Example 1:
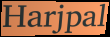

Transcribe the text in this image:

Harjpal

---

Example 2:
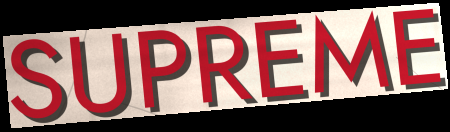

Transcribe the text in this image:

SUPREME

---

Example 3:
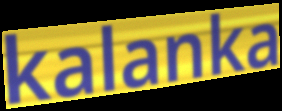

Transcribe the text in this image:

kalanka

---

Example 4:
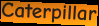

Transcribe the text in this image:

Caterpillar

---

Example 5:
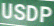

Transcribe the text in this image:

USDP